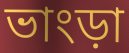
ভাংড়া